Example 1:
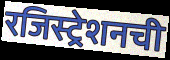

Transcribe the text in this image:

रजिस्ट्रेशनची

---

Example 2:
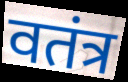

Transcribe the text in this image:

वतंत्र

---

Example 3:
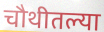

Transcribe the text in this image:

चौथीतल्या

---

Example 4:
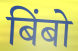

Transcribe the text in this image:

बिंबो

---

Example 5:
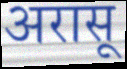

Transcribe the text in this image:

अरासू